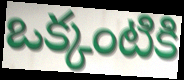
ఒక్కంటికి